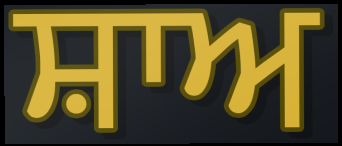
ਸ਼ਾਅ